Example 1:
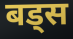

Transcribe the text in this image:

बड्स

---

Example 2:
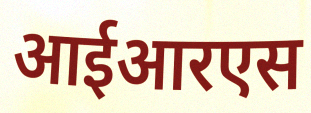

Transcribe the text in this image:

आईआरएस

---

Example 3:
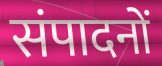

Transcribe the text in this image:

संपादनों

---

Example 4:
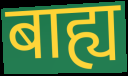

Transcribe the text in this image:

बाह्य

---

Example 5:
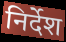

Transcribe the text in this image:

निर्देश